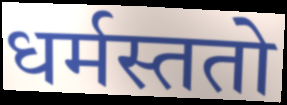
धर्मस्ततो